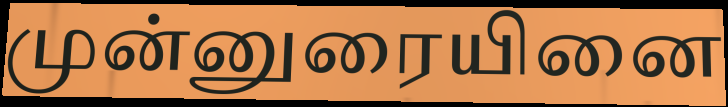
முன்னுரையினை